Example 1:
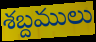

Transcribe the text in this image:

శబ్దములు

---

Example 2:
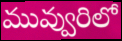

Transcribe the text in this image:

మువ్వురిలో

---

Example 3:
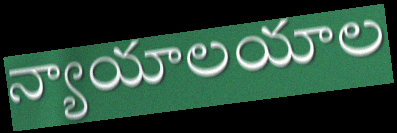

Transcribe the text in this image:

న్యాయాలయాల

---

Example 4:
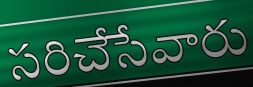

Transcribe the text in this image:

సరిచేసేవారు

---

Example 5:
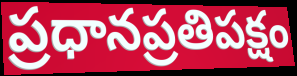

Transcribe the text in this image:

ప్రధానప్రతిపక్షం